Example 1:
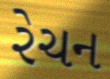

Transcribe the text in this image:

રેચન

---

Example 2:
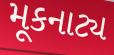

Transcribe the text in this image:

મૂકનાટ્ય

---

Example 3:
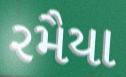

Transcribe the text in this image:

રમૈયા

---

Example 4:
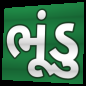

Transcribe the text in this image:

ભૂંડુ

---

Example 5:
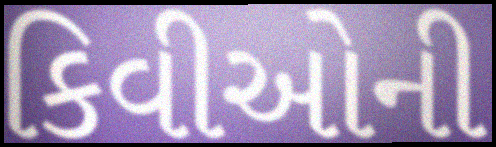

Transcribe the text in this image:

કિવીઓની